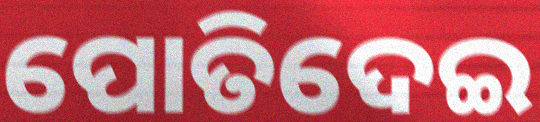
ପୋତିଦେଇ